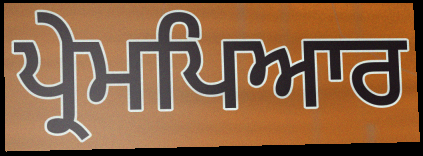
ਪ੍ਰੇਮਪਿਆਰ